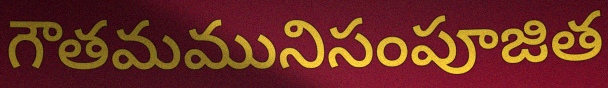
గౌతమమునిసంపూజిత